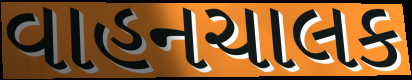
વાહનચાલક